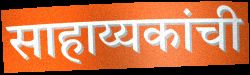
साहाय्यकांची